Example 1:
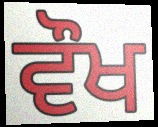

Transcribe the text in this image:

ਵੌਖ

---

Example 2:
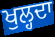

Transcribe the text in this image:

ਖੁਲ੍ਹਦਾ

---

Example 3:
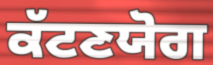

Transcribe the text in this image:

ਕੱਟਣਯੋਗ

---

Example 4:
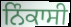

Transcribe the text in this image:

ਨਿੰਕਾਸੀ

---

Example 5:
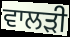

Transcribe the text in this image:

ਵਾਲੜੀ